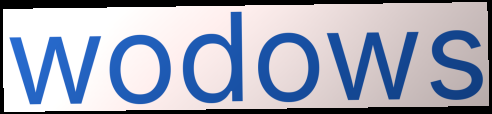
wodows